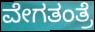
ವೇಗತಂತ್ರೆ